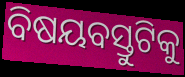
ବିଷୟବସ୍ତୁଟିକୁ